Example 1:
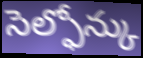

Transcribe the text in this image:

సెల్ఫోన్కు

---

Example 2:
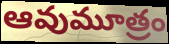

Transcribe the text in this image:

ఆవుమూత్రం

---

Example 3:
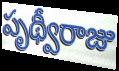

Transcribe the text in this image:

పృథ్వీరాజు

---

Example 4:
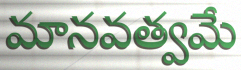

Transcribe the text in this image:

మానవత్వమే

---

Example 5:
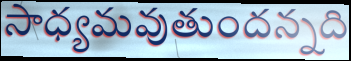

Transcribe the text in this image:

సాధ్యమవుతుందన్నది